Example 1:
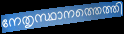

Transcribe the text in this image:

നേതൃസ്ഥാനത്തെത്തി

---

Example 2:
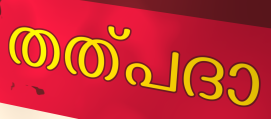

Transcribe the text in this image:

തത്പദാ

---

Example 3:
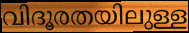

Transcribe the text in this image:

വിദൂരതയിലുള്ള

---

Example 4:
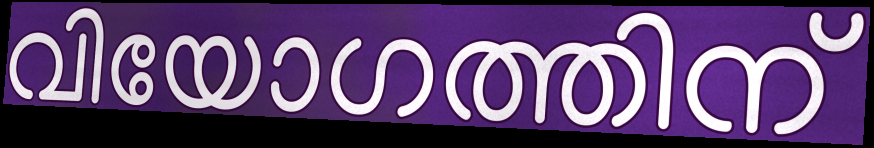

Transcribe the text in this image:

വിയോഗത്തിന്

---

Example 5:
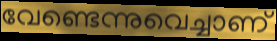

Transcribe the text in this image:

വേണ്ടെന്നുവെച്ചാണ്